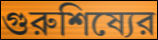
গুরুশিষ্যের